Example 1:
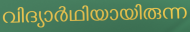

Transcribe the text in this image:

വിദ്യാർഥിയായിരുന്ന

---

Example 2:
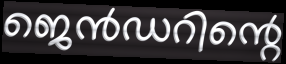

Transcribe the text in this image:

ജെൻഡറിന്റെ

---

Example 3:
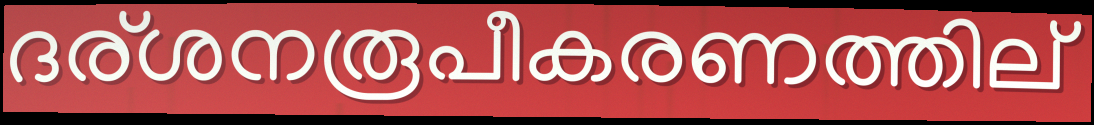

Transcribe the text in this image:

ദര്ശനരൂപീകരണത്തില്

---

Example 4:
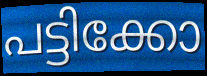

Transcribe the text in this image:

പട്ടിക്കോ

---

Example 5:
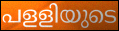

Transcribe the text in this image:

പളളിയുടെ